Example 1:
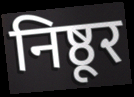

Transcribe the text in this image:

निष्ठूर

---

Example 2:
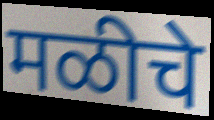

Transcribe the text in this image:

मळीचे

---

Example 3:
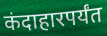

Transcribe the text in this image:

कंदाहारपर्यंत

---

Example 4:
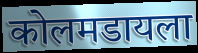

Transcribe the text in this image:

कोलमडायला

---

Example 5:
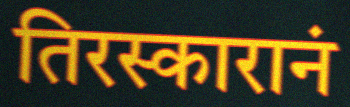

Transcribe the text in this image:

तिरस्कारानं